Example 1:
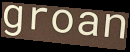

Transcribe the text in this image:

groan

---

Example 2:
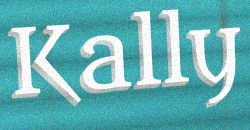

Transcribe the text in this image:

Kally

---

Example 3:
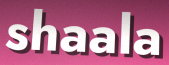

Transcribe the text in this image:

shaala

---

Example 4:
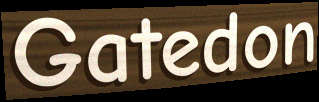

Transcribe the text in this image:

Gatedon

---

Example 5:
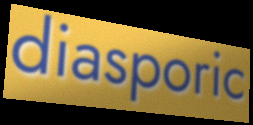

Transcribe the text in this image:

diasporic